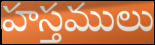
హస్తములు